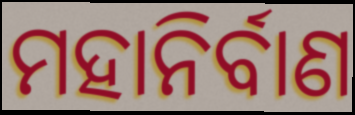
ମହାନିର୍ବାଣ